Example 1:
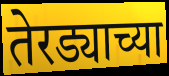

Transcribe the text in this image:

तेरड्याच्या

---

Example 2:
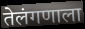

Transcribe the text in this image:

तेलंगणाला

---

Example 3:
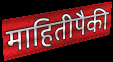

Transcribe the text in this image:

माहितीपैकी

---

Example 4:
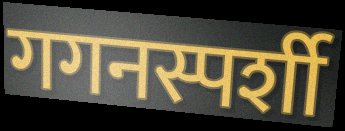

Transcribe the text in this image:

गगनस्पर्शी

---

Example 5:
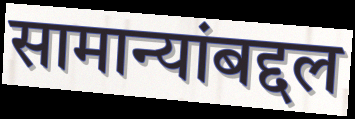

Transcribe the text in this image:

सामान्यांबद्दल